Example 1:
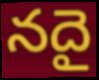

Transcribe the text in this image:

నదై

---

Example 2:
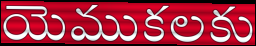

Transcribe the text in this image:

యెముకలకు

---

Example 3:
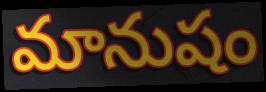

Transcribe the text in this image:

మానుషం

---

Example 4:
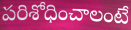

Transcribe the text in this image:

పరిశోధించాలంటే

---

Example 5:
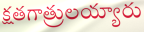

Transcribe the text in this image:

క్షతగాత్రులయ్యారు